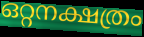
ഒറ്റനക്ഷത്രം